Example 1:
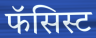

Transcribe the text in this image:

फॅसिस्ट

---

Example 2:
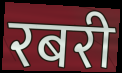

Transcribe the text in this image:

रबरी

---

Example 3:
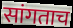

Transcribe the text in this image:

सांगताच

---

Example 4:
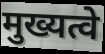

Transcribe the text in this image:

मुख्यत्वे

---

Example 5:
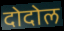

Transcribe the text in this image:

दोदोल